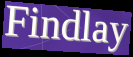
Findlay